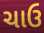
ચાઉ